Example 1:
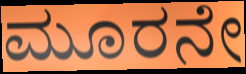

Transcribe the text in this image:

ಮೂರನೇ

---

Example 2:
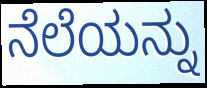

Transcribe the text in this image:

ನೆಲೆಯನ್ನು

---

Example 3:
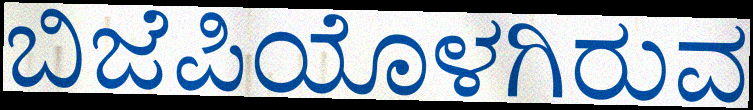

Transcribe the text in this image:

ಬಿಜೆಪಿಯೊಳಗಿರುವ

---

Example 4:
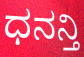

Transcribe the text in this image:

ಧನನ್ತಿ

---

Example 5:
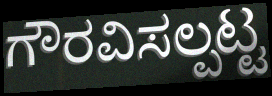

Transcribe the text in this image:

ಗೌರವಿಸಲ್ಪಟ್ಟ